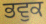
ਭਵੁਕ